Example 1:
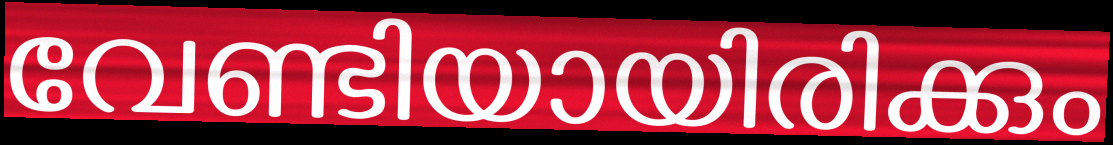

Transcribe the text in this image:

വേണ്ടിയായിരിക്കും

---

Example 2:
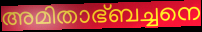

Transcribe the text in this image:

അമിതാഭ്ബച്ചനെ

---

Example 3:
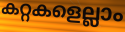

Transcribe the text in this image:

കറ്റകളെല്ലാം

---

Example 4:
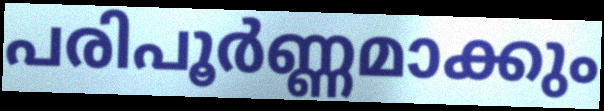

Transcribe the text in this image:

പരിപൂർണ്ണമാക്കും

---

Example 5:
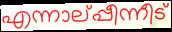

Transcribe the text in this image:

എന്നാല്പ്പീന്നീട്